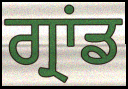
ਗ੍ਰਾਂਡ